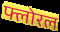
फ्लोरल